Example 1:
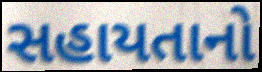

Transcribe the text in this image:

સહાયતાનો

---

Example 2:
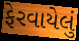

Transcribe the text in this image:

ફેરવાયેલું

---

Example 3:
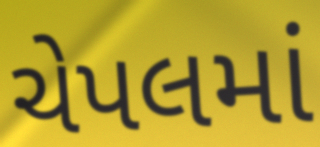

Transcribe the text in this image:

ચેપલમાં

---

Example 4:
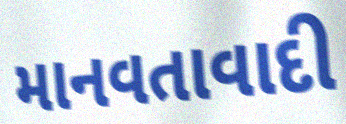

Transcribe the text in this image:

માનવતાવાદી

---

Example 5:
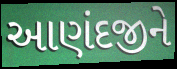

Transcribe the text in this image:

આણંદજીને